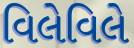
વિલેવિલે